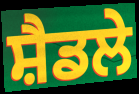
ਸ਼ੈਡਲੇ